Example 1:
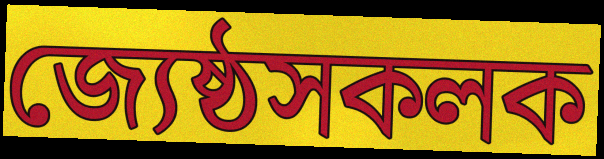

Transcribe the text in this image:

জ্যেষ্ঠসকলক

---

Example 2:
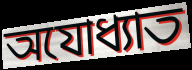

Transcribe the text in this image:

অযোধ্যাত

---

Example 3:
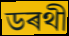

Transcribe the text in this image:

ডৰথী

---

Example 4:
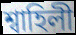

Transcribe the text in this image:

শ্বাহিলী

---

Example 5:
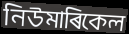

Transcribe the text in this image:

নিউমাৰিকেল